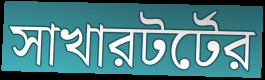
সাখারটর্টের